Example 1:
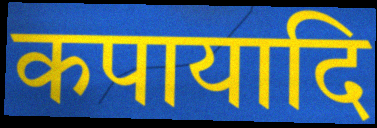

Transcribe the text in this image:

कपायादि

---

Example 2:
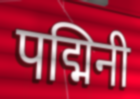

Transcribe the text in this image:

पद्मिनी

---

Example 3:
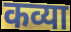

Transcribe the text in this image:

कव्या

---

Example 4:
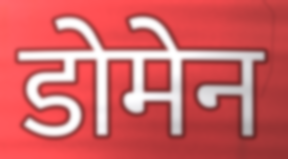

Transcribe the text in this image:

डोमेन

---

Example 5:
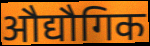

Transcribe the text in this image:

औद्यौगिक